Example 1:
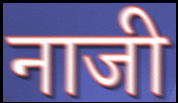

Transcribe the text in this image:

नाजी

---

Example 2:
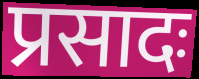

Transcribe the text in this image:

प्रसादः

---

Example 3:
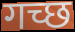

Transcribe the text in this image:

गच्छ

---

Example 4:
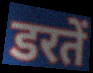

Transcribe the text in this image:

डरतें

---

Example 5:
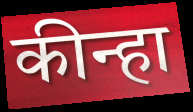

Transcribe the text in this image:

कीन्हा